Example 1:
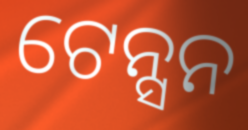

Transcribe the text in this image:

ଟେନ୍ସନ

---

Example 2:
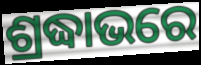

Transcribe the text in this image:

ଶ୍ରଦ୍ଧାଭରେ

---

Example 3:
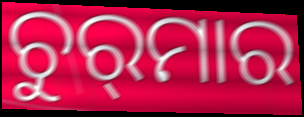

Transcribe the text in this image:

ଚୁର୍‍ମାର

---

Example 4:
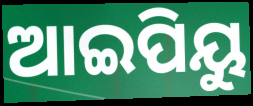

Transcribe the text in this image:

ଆଇପିୟୁ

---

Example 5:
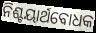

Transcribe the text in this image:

ନିଶ୍ଚୟାର୍ଥବୋଧକ